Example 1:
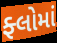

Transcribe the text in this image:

ફ્લોમાં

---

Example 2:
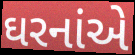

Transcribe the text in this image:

ઘરનાંએ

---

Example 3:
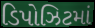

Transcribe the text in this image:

ડિપોઝિટમાં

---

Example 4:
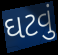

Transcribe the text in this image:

ઘટવું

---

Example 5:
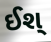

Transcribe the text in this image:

ઈશ્